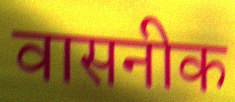
वासनीक